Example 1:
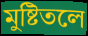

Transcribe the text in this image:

মুষ্টিতলে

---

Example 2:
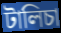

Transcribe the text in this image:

টালিচা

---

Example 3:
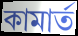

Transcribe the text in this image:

কামার্ত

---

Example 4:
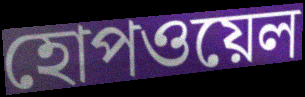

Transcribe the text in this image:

হোপওয়েল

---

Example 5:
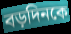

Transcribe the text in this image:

বড়দিনকে